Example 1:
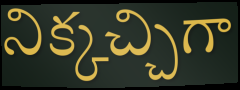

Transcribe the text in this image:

నిక్కచ్చిగా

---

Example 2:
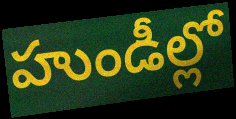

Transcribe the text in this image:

హుండీల్లో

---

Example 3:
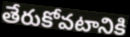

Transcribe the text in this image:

తేరుకోవటానికి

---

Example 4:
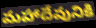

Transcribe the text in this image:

మహాదేవునికి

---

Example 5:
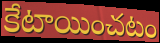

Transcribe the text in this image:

కేటాయించటం